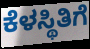
ಕೆಳಸ್ಥಿತಿಗೆ